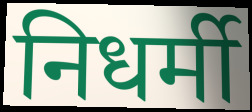
निधर्मी